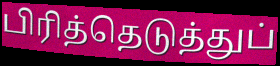
பிரித்தெடுத்துப்